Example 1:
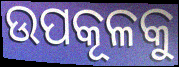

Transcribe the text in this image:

ଉପକୂଳକୁ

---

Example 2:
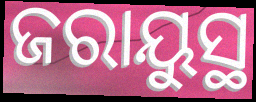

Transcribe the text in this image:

ଜରାୟୁସ୍ଥ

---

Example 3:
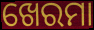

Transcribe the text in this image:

ଖେରମା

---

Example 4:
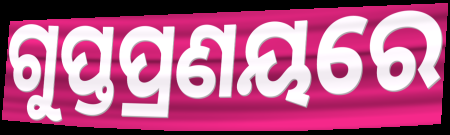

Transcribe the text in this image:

ଗୁପ୍ତପ୍ରଣୟରେ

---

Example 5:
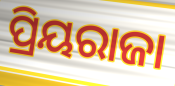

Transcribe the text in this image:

ପ୍ରିୟରାଜା